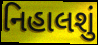
નિહાલશું